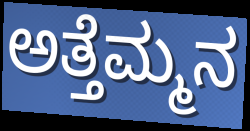
ಅತ್ತೆಮ್ಮನ